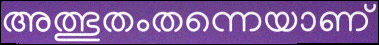
അത്ഭുതംതന്നെയാണ്